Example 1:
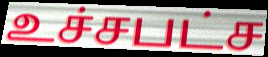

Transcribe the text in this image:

உச்சபட்ச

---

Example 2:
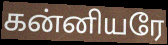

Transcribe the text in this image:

கன்னியரே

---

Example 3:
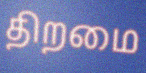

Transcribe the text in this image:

திறமை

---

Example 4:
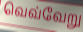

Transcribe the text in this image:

வெவ்வேறு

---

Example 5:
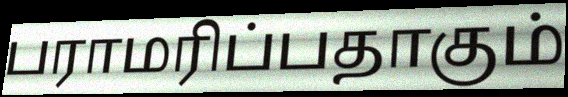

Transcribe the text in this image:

பராமரிப்பதாகும்